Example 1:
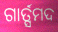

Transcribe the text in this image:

ଗାର୍ତ୍ସମଦ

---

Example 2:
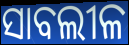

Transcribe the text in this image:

ସାବଲୀଳ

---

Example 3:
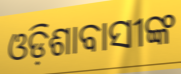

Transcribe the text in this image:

ଓଡ଼ିଶାବାସୀଙ୍କ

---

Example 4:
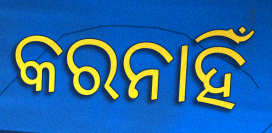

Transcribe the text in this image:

କରନାହିଁ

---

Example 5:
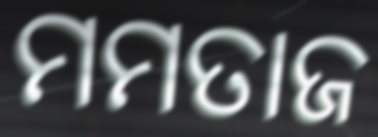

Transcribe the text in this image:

ମମତାଜ